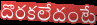
దొరకలేదంటే